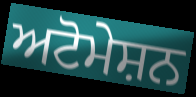
ਅਟੋਮੇਸ਼ਨ